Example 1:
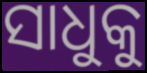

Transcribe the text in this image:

ସାଧୁକୁ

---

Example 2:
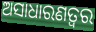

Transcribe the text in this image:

ଅସାଧାରଣତ୍ୱର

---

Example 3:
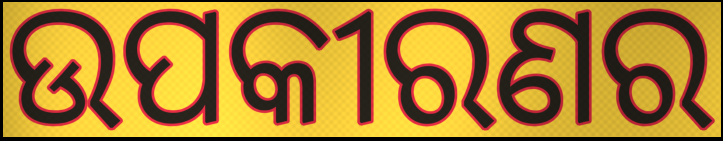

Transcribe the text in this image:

ଉପକୀରଣର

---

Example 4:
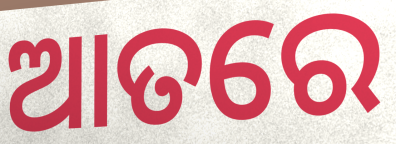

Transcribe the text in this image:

ଆତରେ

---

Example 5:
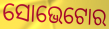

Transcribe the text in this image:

ସୋଭେଟୋର